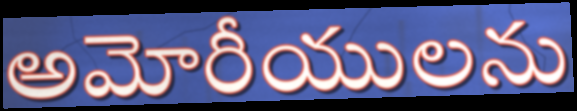
అమోరీయులను